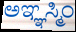
ಅಞ್ಞಸ್ಮಿಂ